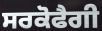
ਸਰਕੋਫੈਗੀ